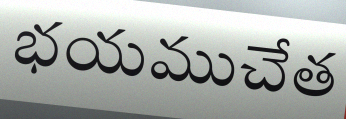
భయముచేత